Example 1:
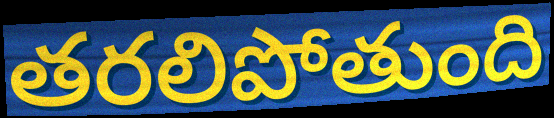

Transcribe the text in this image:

తరలిపోతుంది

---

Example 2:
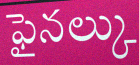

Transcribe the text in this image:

ఫైనల్కు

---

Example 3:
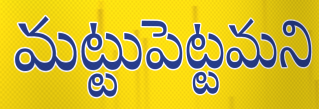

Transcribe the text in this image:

మట్టుపెట్టమని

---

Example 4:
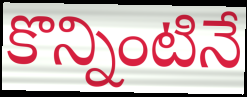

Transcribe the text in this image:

కొన్నింటినే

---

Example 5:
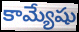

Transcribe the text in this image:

కామ్యేషు